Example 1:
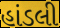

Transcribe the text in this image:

હાંડલી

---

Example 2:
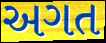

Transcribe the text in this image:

અગત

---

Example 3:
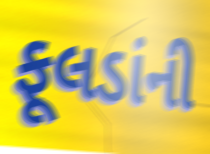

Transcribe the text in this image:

ફૂલડાંની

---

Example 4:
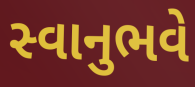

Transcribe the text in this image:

સ્વાનુભવે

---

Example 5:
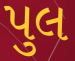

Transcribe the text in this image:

પુલ